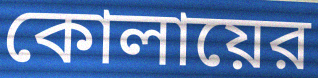
কোলায়ের